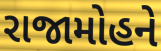
રાજામોહને